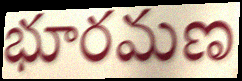
భూరమణ